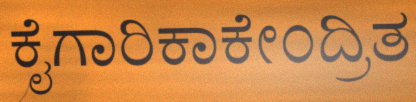
ಕೈಗಾರಿಕಾಕೇಂದ್ರಿತ